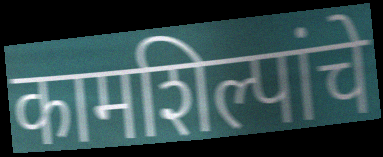
कामशिल्पांचे